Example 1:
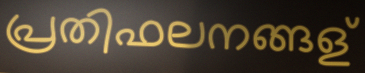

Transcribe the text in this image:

പ്രതിഫലനങ്ങള്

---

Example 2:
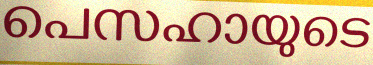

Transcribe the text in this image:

പെസഹായുടെ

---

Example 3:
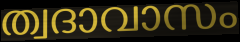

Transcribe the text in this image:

ത്വദാവാസം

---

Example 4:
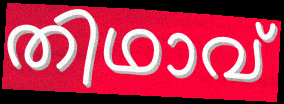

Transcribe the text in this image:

തിഥാവ്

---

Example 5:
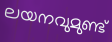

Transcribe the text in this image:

ലയനവുമുണ്ട്